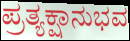
ಪ್ರತ್ಯಕ್ಷಾನುಭವ